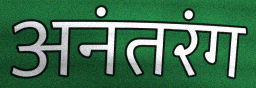
अनंतरंग